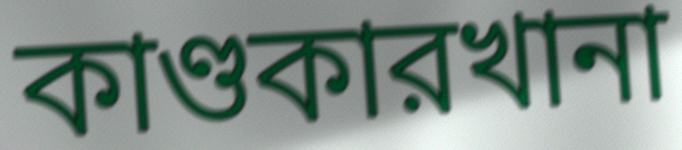
কাণ্ডকারখানা